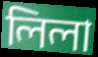
লিলা